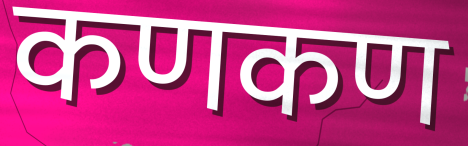
कणकण